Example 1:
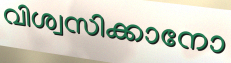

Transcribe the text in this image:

വിശ്വസിക്കാനോ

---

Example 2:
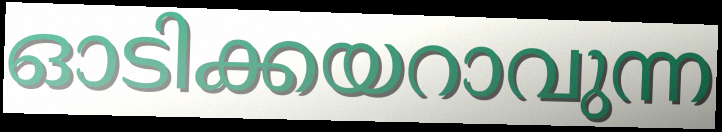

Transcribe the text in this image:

ഓടിക്കയറാവുന്ന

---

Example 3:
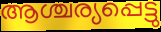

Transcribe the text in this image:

ആശ്ചര്യപ്പെട്ടു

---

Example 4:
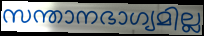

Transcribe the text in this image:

സന്താനഭാഗ്യമില്ല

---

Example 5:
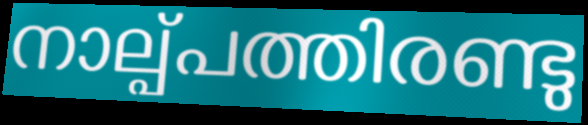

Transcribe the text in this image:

നാല്പ്പത്തിരണ്ടു